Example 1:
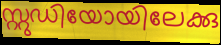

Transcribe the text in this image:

സ്റ്റുഡിയോയിലേക്കു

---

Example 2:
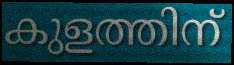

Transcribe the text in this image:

കുളത്തിന്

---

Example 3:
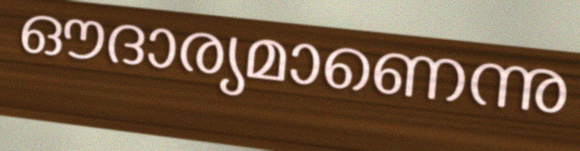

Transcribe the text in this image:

ഔദാര്യമാണെന്നു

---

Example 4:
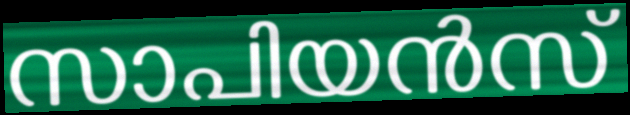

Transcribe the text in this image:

സാപിയൻസ്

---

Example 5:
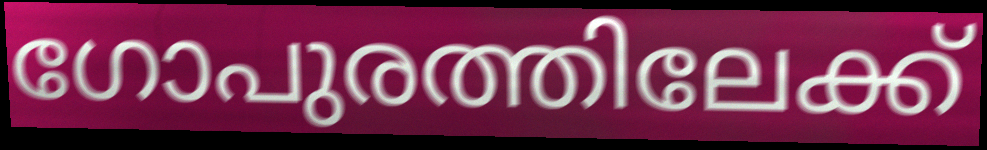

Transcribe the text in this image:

ഗോപുരത്തിലേക്ക്